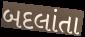
બદલાંતા